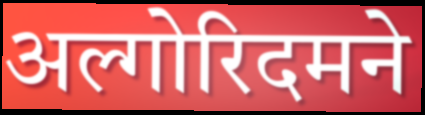
अल्गोरिदमने